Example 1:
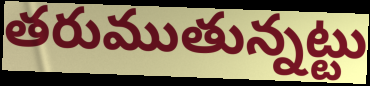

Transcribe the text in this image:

తరుముతున్నట్టు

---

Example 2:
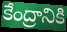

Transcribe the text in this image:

కేంద్రానికి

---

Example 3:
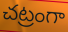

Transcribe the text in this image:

చట్రంగా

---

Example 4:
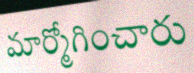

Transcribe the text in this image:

మార్మోగించారు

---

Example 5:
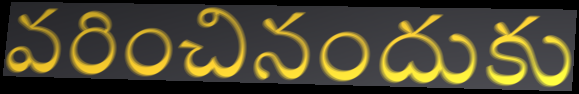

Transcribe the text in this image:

వరించినందుకు